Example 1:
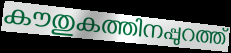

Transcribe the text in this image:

കൗതുകത്തിനപ്പുറത്ത്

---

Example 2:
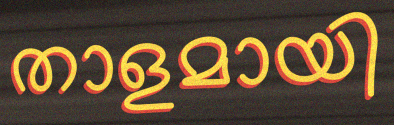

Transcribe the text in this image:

താളമായി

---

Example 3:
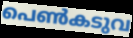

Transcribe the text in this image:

പെൺകടുവ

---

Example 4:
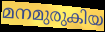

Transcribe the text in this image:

മനമുരുകിയ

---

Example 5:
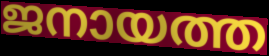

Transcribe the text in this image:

ജനായത്ത